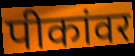
पीकांवर